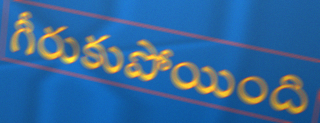
గీరుకుపోయింది